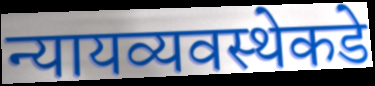
न्यायव्यवस्थेकडे